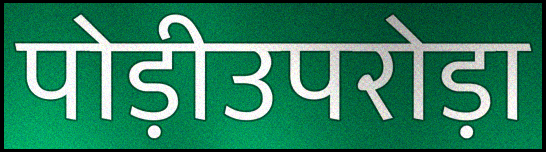
पोड़ीउपरोड़ा